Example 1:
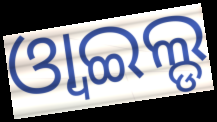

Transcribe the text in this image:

ଓ୍ବାଇଲ୍ଡ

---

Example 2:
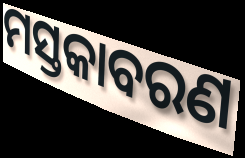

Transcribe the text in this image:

ମସ୍ତକାବରଣ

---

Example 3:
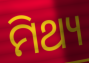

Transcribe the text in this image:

ମିଥ୍ୟ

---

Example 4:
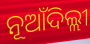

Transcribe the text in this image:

ନୂଆଁଦିଲ୍ଲୀ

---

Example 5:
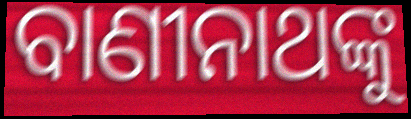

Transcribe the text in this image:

ବାଣୀନାଥଙ୍କୁ